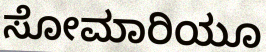
ಸೋಮಾರಿಯೂ